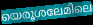
യെരൂശലേമിലെ